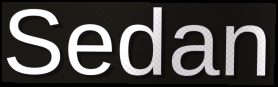
Sedan